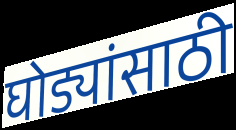
घोड्यांसाठी